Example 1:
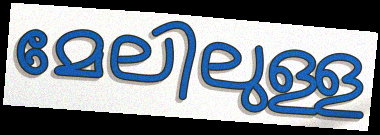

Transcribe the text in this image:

മേലിലുള്ള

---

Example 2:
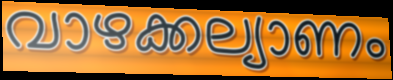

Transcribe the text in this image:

വാഴക്കല്യാണം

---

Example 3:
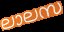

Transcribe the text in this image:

ലാലസ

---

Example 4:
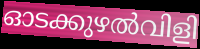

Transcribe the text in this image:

ഓടക്കുഴൽവിളി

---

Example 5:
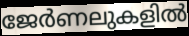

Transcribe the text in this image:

ജേർണലുകളിൽ